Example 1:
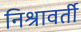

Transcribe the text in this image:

निश्रावर्ती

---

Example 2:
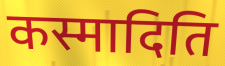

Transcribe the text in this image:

कस्मादिति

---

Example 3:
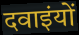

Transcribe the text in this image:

दवाइंयों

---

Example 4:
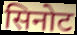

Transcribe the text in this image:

सिनोट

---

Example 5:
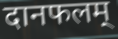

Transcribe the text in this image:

दानफलम्